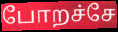
போறச்சே